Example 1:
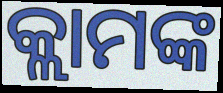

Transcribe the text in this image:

କ୍ଲାମଙ୍କ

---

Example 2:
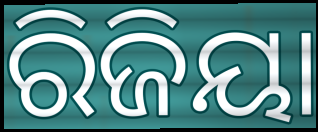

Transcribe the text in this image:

ରିଜିୟା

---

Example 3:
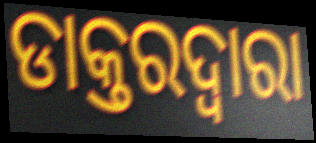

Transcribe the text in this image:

ଡାକ୍ତରଦ୍ୱାରା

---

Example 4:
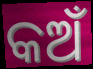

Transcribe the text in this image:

କଅଁ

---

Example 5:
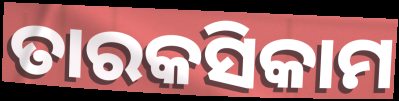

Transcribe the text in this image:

ତାରକସିକାମ